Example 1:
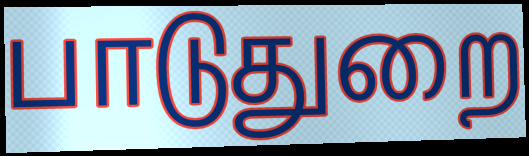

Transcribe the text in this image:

பாடுதுறை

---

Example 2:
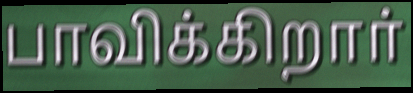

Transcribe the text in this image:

பாவிக்கிறார்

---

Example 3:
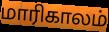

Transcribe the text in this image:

மாரிகாலம்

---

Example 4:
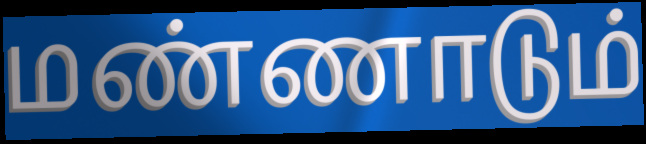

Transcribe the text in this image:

மண்ணாடும்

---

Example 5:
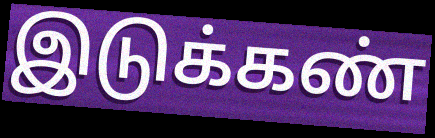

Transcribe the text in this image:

இடுக்கண்